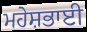
ਮਹੇਸ਼ਭਾਈ